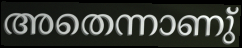
അതെന്നാണു്